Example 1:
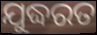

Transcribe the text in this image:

ଯୁଦ୍ଧରତ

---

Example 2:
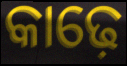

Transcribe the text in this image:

କାଢ଼େ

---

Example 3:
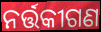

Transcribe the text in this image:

ନର୍ତ୍ତକୀଗଣ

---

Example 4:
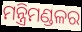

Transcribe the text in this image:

ମନ୍ତ୍ରିମଣ୍ଡଳର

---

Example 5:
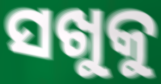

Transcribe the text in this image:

ସଖୁକୁ